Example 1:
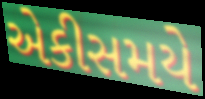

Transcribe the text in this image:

એકીસમયે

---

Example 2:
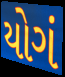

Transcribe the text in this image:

યોગં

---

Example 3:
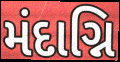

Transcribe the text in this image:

મંદાગ્નિ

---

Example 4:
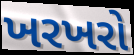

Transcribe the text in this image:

ખરખરો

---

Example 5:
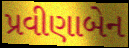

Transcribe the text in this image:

પ્રવીણાબેન